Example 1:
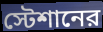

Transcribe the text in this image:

স্টেশানের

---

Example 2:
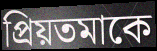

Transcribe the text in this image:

প্রিয়তমাকে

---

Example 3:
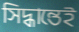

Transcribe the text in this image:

সিদ্ধান্তেই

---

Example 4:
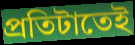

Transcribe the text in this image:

প্রতিটাতেই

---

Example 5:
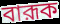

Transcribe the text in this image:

বারূক